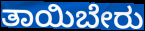
ತಾಯಿಬೇರು